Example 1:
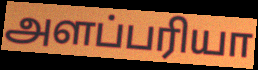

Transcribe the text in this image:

அளப்பரியா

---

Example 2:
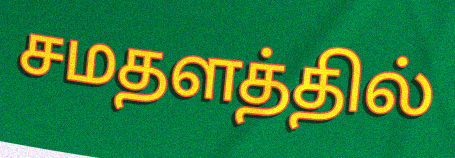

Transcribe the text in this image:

சமதளத்தில்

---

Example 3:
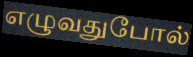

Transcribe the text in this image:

எழுவதுபோல்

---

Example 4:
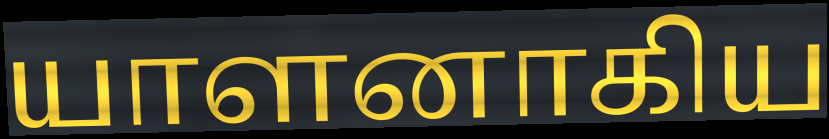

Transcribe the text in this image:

யாளனாகிய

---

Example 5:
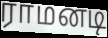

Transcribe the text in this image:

ராமனடி